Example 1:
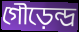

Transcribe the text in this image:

গৌড়েন্দ্র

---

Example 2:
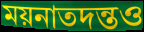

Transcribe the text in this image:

ময়নাতদন্তও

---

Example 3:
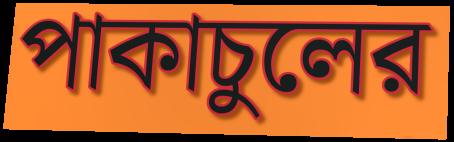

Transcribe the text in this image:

পাকাচুলের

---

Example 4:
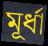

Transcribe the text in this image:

মূর্ধা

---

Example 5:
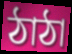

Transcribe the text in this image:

ঠাঠা